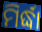
ମିର୍ଦ୍ଧା